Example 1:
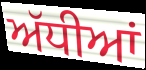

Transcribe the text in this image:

ਅੱਧੀਆਂ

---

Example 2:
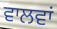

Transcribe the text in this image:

ਵਾਲਵਾਂ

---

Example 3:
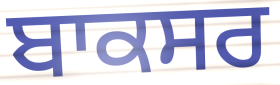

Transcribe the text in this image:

ਬਾਕਸਰ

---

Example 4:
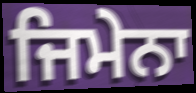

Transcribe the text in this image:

ਜਿਮੇਨਾ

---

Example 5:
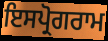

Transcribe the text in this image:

ਇਸਪ੍ਰੋਗਰਾਮ